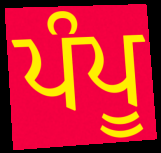
ਪੰਪੂ